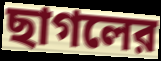
ছাগলের